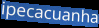
ipecacuanha